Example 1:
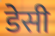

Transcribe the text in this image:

डेसी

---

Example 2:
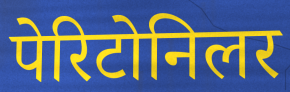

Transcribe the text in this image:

पेरिटोनिलर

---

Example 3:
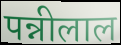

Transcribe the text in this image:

पन्नीलाल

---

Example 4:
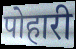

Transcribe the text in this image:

पोहारी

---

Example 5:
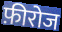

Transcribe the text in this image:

फ़ीरोज